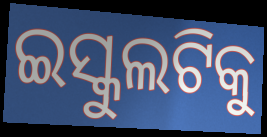
ଇସ୍କୁଲଟିକୁ